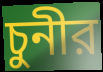
চুনীর